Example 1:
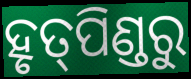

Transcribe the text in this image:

ହୃତ୍‌ପିଣ୍ଡରୁ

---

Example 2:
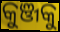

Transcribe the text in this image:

କୁଞ୍ଜକୁ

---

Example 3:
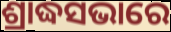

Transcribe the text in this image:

ଶ୍ରାଦ୍ଧସଭାରେ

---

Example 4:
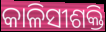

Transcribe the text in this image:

କାଳିସୀଶକ୍ତି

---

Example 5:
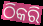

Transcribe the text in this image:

ଠିକରି